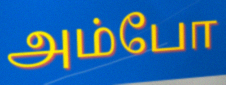
அம்போ